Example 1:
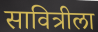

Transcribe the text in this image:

सावित्रीला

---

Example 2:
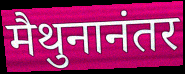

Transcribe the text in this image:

मैथुनानंतर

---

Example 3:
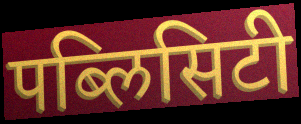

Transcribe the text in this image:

पब्लिसिटी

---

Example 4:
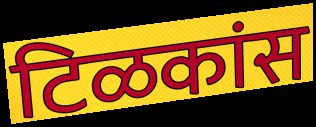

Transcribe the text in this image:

टिळकांस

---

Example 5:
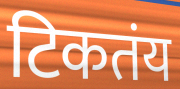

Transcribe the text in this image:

टिकतंय